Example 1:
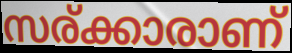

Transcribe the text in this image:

സര്ക്കാരാണ്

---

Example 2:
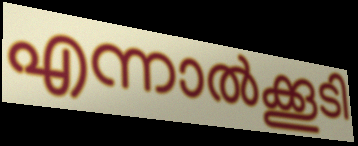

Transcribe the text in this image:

എന്നാൽക്കൂടി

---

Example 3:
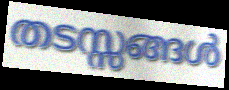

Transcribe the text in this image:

തടസ്സങ്ങൾ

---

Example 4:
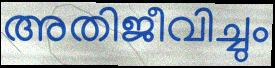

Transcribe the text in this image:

അതിജീവിച്ചും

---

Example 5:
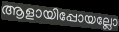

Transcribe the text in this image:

ആളായിപ്പോയല്ലോ